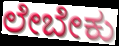
ಲೇಬೇಕು